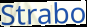
Strabo